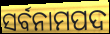
ସର୍ବନାମପଦ